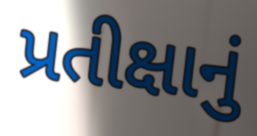
પ્રતીક્ષાનું